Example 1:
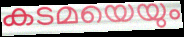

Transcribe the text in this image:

കടമയെയും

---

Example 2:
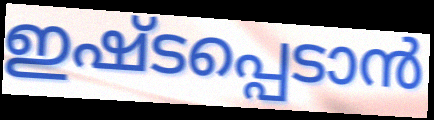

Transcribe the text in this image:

ഇഷ്ടപ്പെടാൻ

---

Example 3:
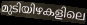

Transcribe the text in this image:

മുടിയിഴകളിലെ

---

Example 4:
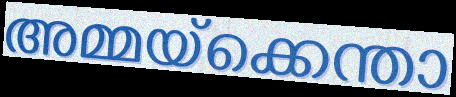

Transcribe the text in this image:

അമ്മയ്‌ക്കെന്താ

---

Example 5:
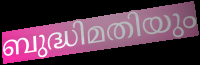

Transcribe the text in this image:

ബുദ്ധിമതിയും